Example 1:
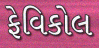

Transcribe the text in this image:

ફેવિકોલ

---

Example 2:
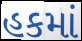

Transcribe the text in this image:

હકમાં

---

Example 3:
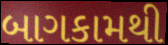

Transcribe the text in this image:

બાગકામથી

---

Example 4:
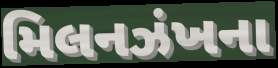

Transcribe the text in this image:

મિલનઝંખના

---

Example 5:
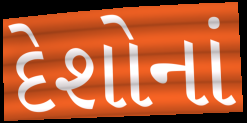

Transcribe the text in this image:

દેશોનાં